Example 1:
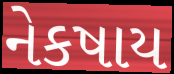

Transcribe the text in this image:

નેકષાય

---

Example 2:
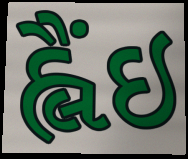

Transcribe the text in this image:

હ્લૈંઇ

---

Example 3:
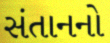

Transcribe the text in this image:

સંતાનનો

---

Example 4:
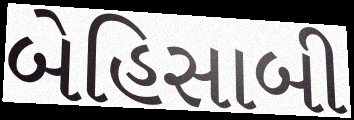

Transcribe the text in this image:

બેહિસાબી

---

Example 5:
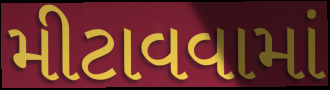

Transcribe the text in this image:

મીટાવવામાં